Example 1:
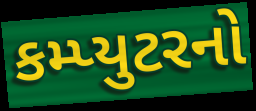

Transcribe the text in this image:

કમ્પ્યુટરનો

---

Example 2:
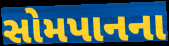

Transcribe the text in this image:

સોમપાનના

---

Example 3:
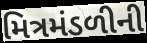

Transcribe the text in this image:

મિત્રમંડળીની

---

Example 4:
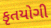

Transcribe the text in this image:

કૃતયોગી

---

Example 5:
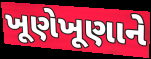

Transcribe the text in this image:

ખૂણેખૂણાને